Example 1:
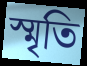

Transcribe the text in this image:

স্মৃতি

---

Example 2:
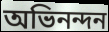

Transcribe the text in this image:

অভিনন্দন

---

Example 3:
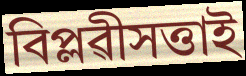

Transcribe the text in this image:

বিপ্লৱীসত্তাই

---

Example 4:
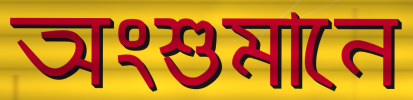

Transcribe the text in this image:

অংশুমানে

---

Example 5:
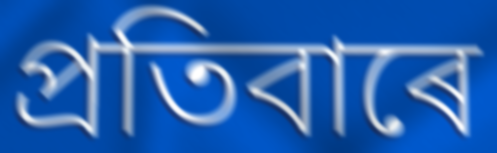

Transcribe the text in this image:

প্ৰতিবাৰে